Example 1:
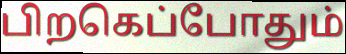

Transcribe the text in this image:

பிறகெப்போதும்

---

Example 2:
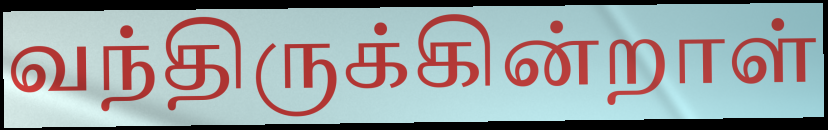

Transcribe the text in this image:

வந்திருக்கின்றாள்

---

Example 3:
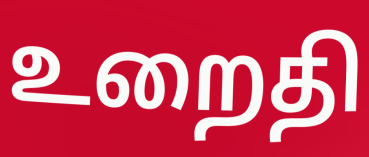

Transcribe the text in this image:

உறைதி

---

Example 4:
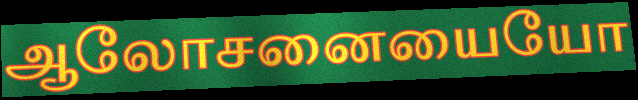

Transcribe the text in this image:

ஆலோசனையையோ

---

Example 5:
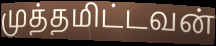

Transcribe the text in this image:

முத்தமிட்டவன்